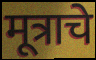
मूत्राचे